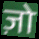
ज़ो